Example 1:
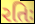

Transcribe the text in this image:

રતિઃ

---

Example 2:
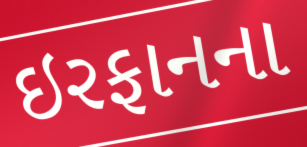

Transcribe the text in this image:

ઇરફાનના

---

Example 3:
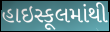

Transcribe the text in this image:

હાઇસ્કૂલમાંથી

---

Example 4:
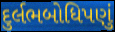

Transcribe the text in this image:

દુર્લભબોધિપણું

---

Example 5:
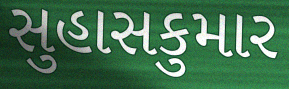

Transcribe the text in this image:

સુહાસકુમાર